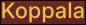
Koppala